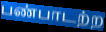
பண்பாடற்ற